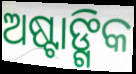
ଅଷ୍ଟାଙ୍ଗିକ